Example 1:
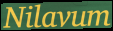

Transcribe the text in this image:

Nilavum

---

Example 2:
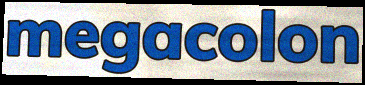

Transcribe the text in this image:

megacolon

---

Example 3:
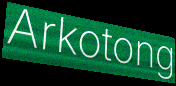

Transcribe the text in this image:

Arkotong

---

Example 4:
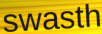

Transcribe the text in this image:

swasth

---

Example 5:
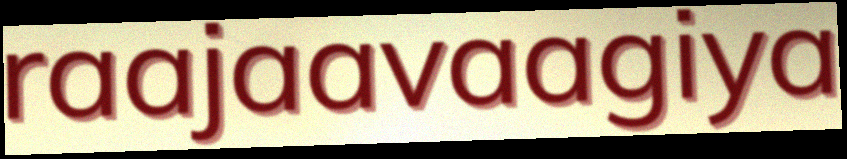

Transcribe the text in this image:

raajaavaagiya